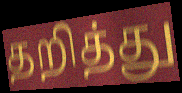
தறித்து